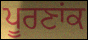
ਪੂਰਣਾਂਕ